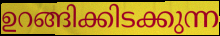
ഉറങ്ങിക്കിടക്കുന്ന